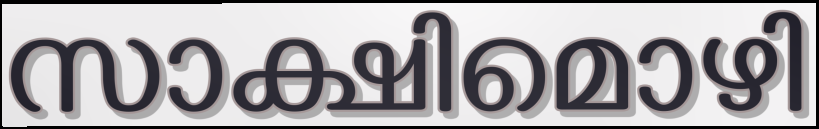
സാക്ഷിമൊഴി